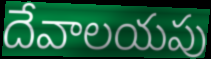
దేవాలయపు